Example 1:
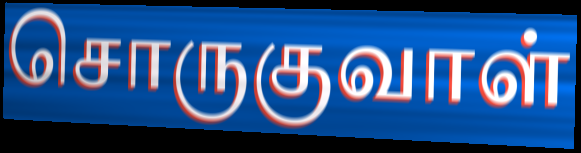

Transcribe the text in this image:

சொருகுவாள்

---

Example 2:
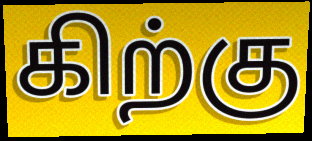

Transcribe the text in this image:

கிற்கு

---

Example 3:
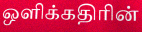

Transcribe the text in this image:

ஒளிக்கதிரின்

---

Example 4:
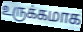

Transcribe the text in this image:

உருக்கமாக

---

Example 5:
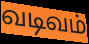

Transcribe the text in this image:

வடிவம்